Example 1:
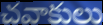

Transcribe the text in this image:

చవాకులు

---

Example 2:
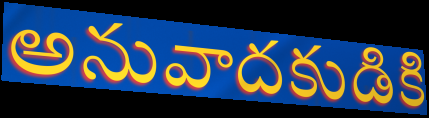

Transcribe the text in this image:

అనువాదకుడికి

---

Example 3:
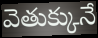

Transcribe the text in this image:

వెతుక్కునే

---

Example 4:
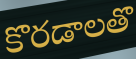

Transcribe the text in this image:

కొరడాలతొ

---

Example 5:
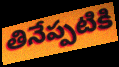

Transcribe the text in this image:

తినేప్పటికి